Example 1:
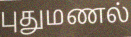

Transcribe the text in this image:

புதுமணல்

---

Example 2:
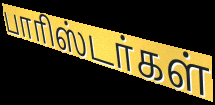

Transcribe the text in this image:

பாரிஸ்டர்கள்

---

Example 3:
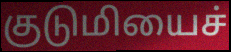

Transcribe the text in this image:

குடுமியைச்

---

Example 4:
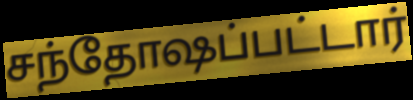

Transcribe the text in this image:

சந்தோஷப்பட்டார்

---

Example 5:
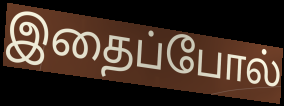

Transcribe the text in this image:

இதைப்போல்